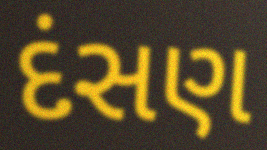
દંસણ